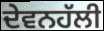
ਦੇਵਨਹੱਲੀ